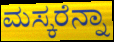
ಮಸ್ಕರೆನ್ನಾ